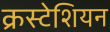
क्रस्टेशियन